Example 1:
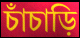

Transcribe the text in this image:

চাঁচাড়ি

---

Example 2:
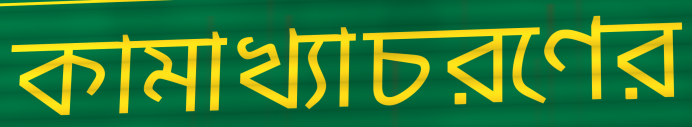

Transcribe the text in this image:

কামাখ্যাচরণের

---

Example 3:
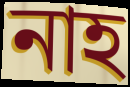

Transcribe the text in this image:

নাহ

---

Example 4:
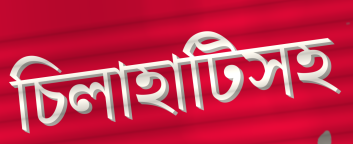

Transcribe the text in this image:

চিলাহাটিসহ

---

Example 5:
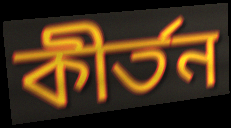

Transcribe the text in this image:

কীর্তন